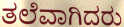
ತಲೆವಾಗಿದರು